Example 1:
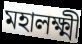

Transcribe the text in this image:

মহালক্ষ্মী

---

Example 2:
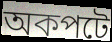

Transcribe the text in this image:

অকপটে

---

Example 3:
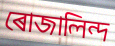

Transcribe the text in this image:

ৰোজালিন্দ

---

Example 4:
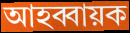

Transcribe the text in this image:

আহব্বায়ক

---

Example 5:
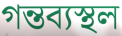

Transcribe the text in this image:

গন্তব্যস্থল